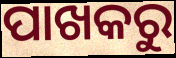
ପାଖକରୁ